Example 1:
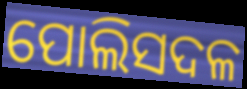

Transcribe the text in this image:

ପୋଲିସଦଳ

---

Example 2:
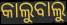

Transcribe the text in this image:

କାଲୁବାଲୁ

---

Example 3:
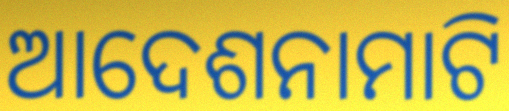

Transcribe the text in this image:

ଆଦେଶନାମାଟି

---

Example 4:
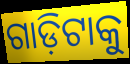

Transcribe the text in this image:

ଗାଡ଼ିଟାକୁ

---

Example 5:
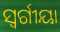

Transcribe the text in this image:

ସ୍ବର୍ଗୀୟା